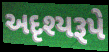
અદૃશ્યરૂપે